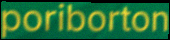
poriborton